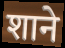
शाने